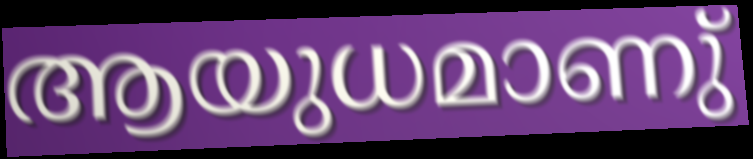
ആയുധമാണു്